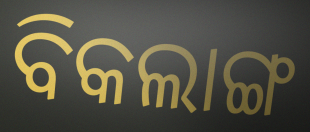
ବିକଲାଙ୍ଗ